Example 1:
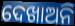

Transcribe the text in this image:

ଦେଖାଅନି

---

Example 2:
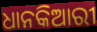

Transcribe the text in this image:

ଧାନକିଆରୀ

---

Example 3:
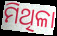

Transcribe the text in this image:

ମିଥିଳା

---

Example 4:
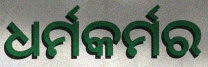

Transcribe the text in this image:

ଧର୍ମକର୍ମର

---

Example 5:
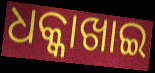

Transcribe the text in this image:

ଧକ୍କାଖାଇ